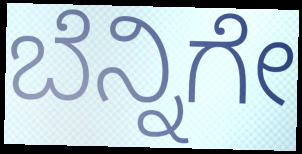
ಬೆನ್ನಿಗೇ